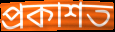
প্ৰকাশত